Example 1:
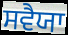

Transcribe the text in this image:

ਸਵੈਯਾ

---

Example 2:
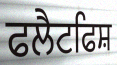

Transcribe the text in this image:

ਫਲੈਟਫਿਸ਼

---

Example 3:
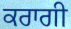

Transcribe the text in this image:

ਕਰਾਗੀ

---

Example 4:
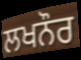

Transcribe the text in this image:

ਲਖਨੌਰ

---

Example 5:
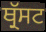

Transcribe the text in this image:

ਥ੍ਰੱਸਟ